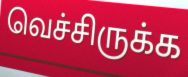
வெச்சிருக்க